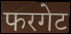
फरगेट